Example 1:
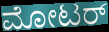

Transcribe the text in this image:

ಮೋಟರ್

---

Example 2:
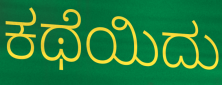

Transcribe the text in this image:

ಕಥೆಯಿದು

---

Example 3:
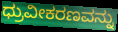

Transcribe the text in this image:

ಧ್ರುವೀಕರಣವನ್ನು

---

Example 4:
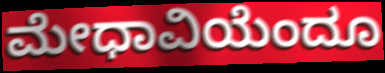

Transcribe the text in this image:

ಮೇಧಾವಿಯೆಂದೂ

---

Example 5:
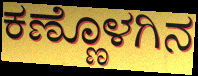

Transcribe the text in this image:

ಕಣ್ಣೊಳಗಿನ